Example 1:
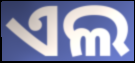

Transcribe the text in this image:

ଏଲ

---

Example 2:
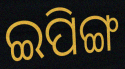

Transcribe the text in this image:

ଇପିଙ୍ଗ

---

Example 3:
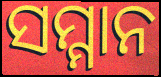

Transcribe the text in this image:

ସମ୍ମାନ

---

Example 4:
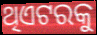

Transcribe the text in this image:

ଥିଏଟରକୁ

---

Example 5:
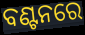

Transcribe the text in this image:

ବଣ୍ଟନରେ